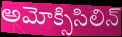
అమోక్సిసిలిన్